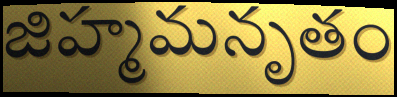
జిహ్మమనృతం